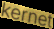
kernet